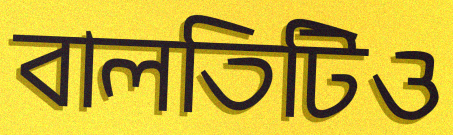
বালতিটিও